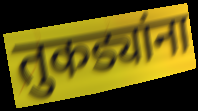
तुकड्यांना